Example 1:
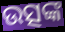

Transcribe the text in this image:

ଉତ୍ସଙ୍କ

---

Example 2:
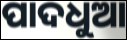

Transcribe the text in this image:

ପାଦଧୁଆ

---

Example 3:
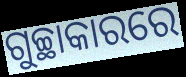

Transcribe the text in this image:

ଗୁଚ୍ଛାକାରରେ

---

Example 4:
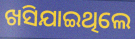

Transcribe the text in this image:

ଖସିଯାଇଥିଲେ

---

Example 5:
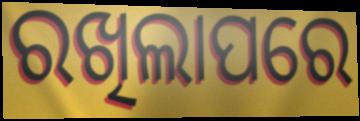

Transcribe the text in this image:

ରଖିଲାପରେ